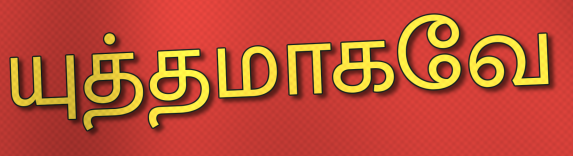
யுத்தமாகவே